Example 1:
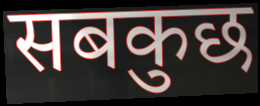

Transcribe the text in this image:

सबकुछ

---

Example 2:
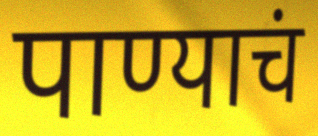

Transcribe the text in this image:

पाण्याचं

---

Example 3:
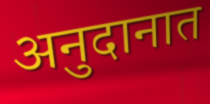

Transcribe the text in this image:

अनुदानात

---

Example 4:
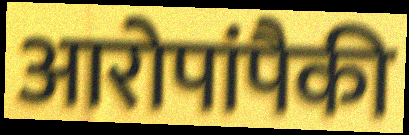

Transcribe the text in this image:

आरोपांपैकी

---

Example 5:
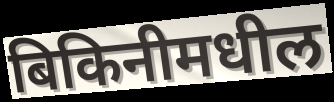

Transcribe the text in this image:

बिकिनीमधील